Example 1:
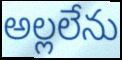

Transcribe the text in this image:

అల్లలేను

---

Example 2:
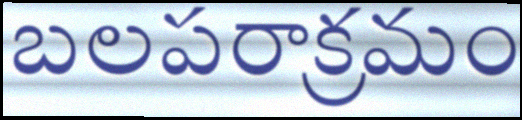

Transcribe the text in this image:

బలపరాక్రమం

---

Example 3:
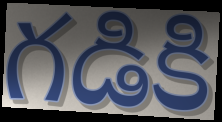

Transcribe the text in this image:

గడికి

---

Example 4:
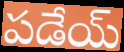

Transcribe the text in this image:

పడేయ్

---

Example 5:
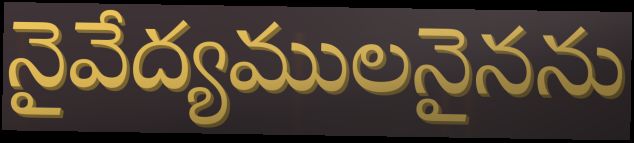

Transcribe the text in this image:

నైవేద్యములనైనను